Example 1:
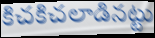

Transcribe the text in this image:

కిచకిచలాడినట్టు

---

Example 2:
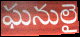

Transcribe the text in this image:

ఘనులై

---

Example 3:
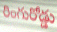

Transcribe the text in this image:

రింగురోడ్డు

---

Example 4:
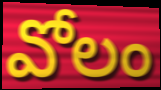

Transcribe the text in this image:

వోలం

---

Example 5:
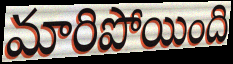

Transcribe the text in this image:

మారిపోయింది